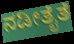
ನಡೀತೈತೆ